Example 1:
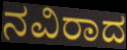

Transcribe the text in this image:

ನವಿರಾದ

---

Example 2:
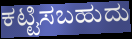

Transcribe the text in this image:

ಕಟ್ಟಿಸಬಹುದು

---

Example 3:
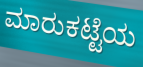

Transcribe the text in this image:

ಮಾರುಕಟ್ಟೆಯ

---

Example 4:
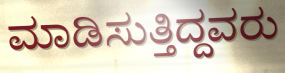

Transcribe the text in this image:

ಮಾಡಿಸುತ್ತಿದ್ದವರು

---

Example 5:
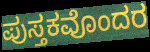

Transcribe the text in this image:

ಪುಸ್ತಕವೊಂದರ